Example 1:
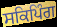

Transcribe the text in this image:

ਸਕਿਪਿੰਗ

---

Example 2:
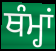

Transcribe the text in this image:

ਥੰਮ੍ਹਾਂ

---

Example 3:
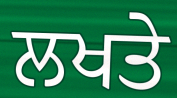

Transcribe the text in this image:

ਲਖਤੇ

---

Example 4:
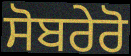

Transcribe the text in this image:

ਸੋਬਰੇਰੋ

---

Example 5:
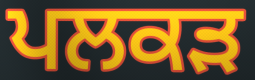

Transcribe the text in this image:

ਪਲਕੜ